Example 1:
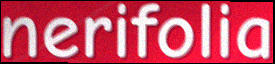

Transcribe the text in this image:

nerifolia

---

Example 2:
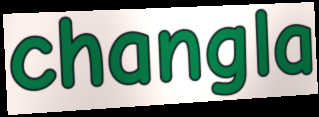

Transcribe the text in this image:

changla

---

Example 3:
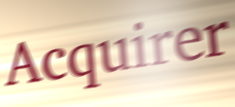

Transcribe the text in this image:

Acquirer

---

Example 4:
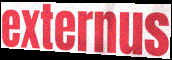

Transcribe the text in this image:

externus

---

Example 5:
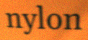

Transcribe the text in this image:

nylon